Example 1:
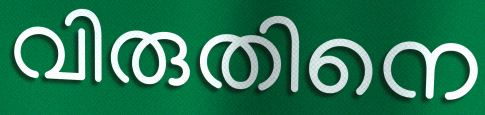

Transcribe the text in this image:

വിരുതിനെ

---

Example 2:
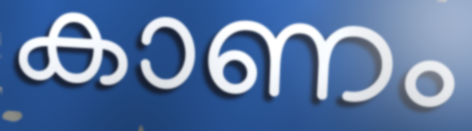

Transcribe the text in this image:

കാണം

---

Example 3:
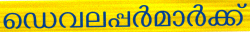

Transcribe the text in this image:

ഡെവലപ്പർമാർക്ക്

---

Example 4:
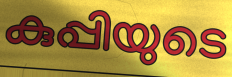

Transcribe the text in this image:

കുപ്പിയുടെ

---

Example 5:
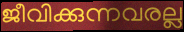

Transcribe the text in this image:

ജീവിക്കുന്നവരല്ല